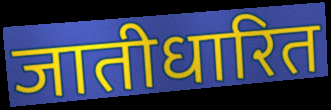
जातीधारित